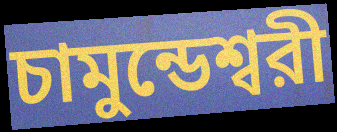
চামুন্ডেশ্বরী